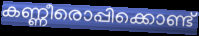
കണ്ണീരൊപ്പിക്കൊണ്ട്